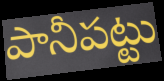
పానీపట్టు